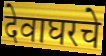
देवाघरचे